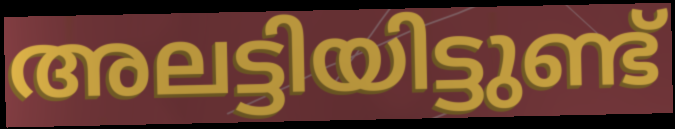
അലട്ടിയിട്ടുണ്ട്